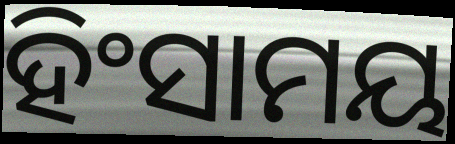
ହିଂସାମୟ